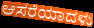
ಆಸರೆಯಾದಳು